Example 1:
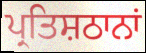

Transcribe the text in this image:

ਪ੍ਰਤਿਸ਼ਠਾਨਾਂ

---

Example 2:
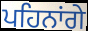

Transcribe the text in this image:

ਪਹਿਨਾਂਗੇ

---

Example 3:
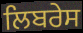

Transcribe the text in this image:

ਲਿਬਰੇਸ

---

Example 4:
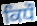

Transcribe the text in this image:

ਕਿਧੌ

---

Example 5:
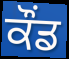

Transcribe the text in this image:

ਕੌਂਡ